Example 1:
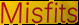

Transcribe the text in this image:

Misfits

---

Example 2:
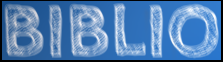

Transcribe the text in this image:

BIBLIO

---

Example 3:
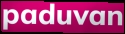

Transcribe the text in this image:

paduvan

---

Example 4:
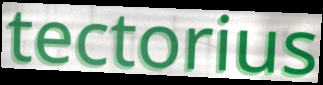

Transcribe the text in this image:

tectorius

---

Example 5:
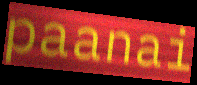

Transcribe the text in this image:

paanai